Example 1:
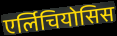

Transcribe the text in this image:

एर्लिचियोसिस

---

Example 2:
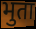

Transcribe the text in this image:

भुता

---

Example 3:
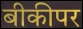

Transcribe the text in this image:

बीकीपर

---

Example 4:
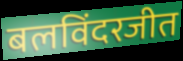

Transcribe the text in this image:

बलविंदरजीत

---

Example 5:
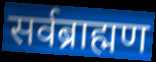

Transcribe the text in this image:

सर्वब्राह्मण